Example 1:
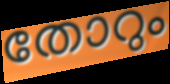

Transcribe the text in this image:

തോറും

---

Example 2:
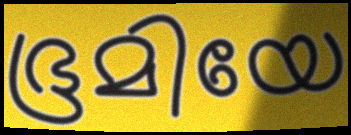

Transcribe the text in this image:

ഭൂമിയേ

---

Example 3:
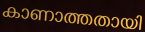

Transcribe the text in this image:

കാണാത്തതായി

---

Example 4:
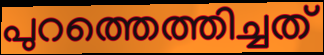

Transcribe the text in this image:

പുറത്തെത്തിച്ചത്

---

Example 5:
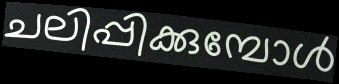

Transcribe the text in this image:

ചലിപ്പിക്കുമ്പോൾ